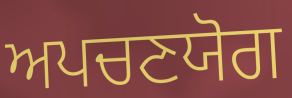
ਅਪਚਣਯੋਗ